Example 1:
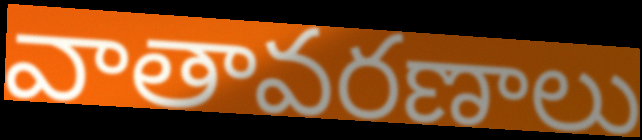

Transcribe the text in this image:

వాతావరణాలు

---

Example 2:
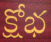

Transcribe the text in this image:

క్షోభ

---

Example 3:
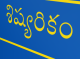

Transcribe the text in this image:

శిష్యరికం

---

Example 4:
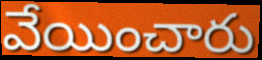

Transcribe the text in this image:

వేయించారు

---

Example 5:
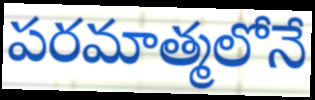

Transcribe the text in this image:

పరమాత్మలోనే